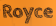
Royce